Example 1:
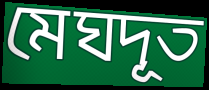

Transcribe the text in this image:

মেঘদূত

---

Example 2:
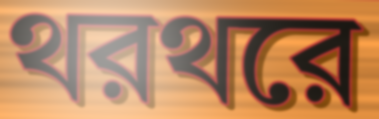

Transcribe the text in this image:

থরথরে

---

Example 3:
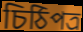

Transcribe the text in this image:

চিঠিপত্র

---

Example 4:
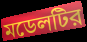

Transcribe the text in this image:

মডেলটির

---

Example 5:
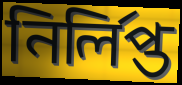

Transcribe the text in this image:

নির্লিপ্ত